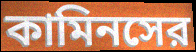
কামিনসের